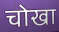
चोखा